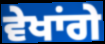
ਵੇਖਾਂਗੇ